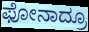
ಫೋನಾದ್ರೂ